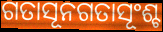
ଗତାସୂନଗତାସୂଂଶ୍ଚ